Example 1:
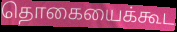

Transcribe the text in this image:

தொகையைக்கூட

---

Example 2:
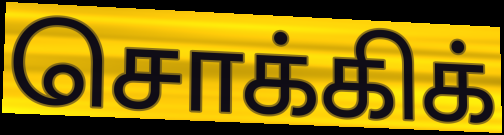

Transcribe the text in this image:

சொக்கிக்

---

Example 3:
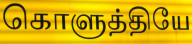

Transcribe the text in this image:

கொளுத்தியே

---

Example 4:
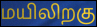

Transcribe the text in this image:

மயிலிறகு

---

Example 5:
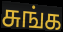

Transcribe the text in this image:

சுங்க